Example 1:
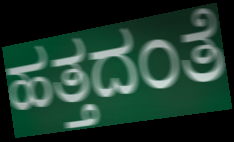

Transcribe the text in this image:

ಹತ್ತದಂತೆ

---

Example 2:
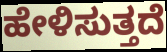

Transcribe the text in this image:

ಹೇಳಿಸುತ್ತದೆ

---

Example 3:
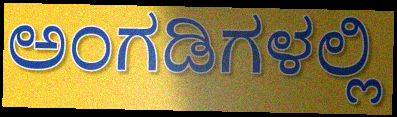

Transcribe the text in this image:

ಅಂಗಡಿಗಳಲ್ಲಿ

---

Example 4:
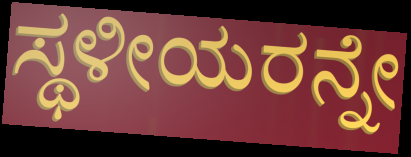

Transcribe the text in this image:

ಸ್ಥಳೀಯರನ್ನೇ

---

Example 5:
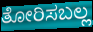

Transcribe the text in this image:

ತೋರಿಸಬಲ್ಲ